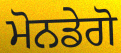
ਮੋਨਡੇਗੋ